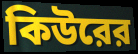
কিউরের